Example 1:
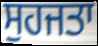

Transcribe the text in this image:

ਸੁਹਜਤਾ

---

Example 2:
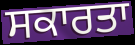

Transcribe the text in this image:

ਸਕਾਰਤਾ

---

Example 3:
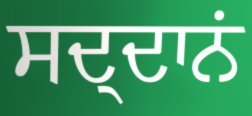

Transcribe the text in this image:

ਸਦ੍ਦਾਨਂ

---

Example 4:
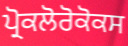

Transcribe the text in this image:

ਪ੍ਰੋਕਲੋਰੋਕੋਕਸ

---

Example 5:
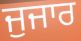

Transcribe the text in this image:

ਜੁਜਾਰ